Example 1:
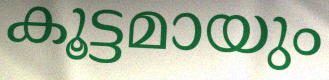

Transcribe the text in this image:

കൂട്ടമായും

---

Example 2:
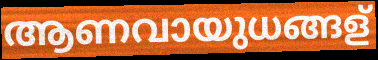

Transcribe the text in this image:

ആണവായുധങ്ങള്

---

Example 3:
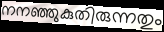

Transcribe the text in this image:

നനഞ്ഞുകുതിരുന്നതും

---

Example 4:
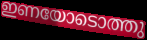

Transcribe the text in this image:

ഇണയോടൊത്തു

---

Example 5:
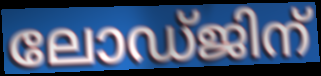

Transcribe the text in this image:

ലോഡ്ജിന്